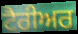
ਟੈਰੀਅਰ